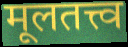
मूलतत्त्व